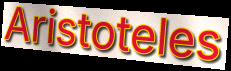
Aristoteles